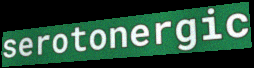
serotonergic